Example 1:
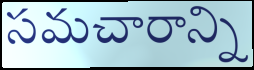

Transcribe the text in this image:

సమచారాన్ని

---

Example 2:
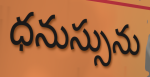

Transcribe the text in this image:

ధనుస్సును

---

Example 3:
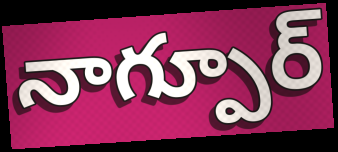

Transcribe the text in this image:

నాగ్పూర్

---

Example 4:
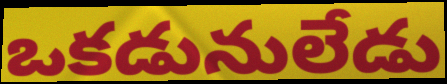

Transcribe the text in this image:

ఒకడునులేడు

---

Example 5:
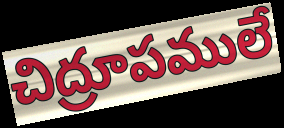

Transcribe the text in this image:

చిద్రూపములే